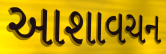
આશાવચન